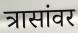
त्रासांवर